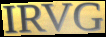
IRVG